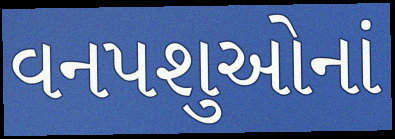
વનપશુઓનાં